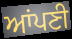
ਆਂਪਣੀ